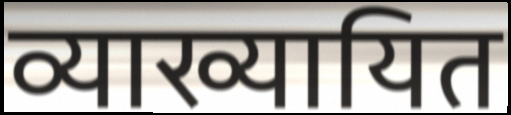
व्याख्यायित